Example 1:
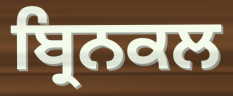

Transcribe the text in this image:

ਬ੍ਰਿਨਕਲ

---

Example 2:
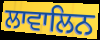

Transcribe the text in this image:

ਲਾਵਾਲਿਨ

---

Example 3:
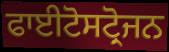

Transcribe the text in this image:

ਫਾਈਟੋਸਟ੍ਰੋਜਨ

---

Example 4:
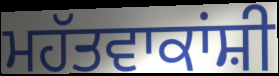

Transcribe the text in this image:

ਮਹੱਤਵਾਕਾਂਸ਼ੀ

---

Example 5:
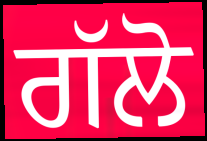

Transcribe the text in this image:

ਗੱਲੋ